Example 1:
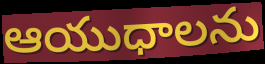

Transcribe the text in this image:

ఆయుధాలను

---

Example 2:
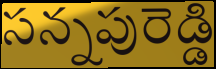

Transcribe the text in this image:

సన్నపురెడ్డి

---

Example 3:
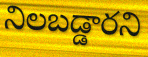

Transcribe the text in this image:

నిలబడ్డారని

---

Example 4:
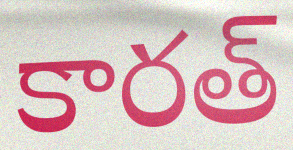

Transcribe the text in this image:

కారత్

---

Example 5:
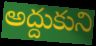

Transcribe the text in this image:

అద్దుకుని